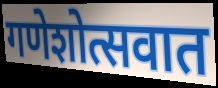
गणेशोत्सवात